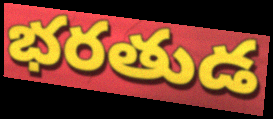
భరతుడ